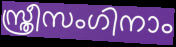
സ്ത്രീസംഗിനാം